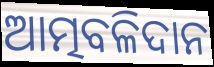
ଆତ୍ମବଳିଦାନ